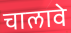
चालावे